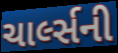
ચાર્લ્સની